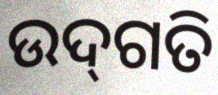
ଉଦ୍‌ଗତି